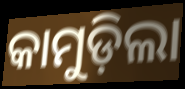
କାମୁଡ଼ିଲା